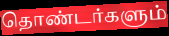
தொண்டர்களும்